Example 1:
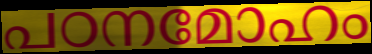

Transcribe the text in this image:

പഠനമോഹം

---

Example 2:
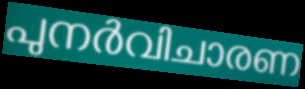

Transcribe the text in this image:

പുനർവിചാരണ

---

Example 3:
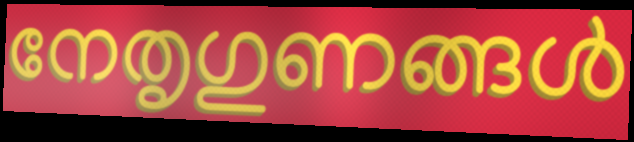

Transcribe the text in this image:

നേതൃഗുണങ്ങൾ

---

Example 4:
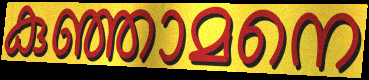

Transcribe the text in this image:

കുഞ്ഞാമനെ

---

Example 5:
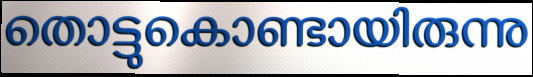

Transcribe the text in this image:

തൊട്ടുകൊണ്ടായിരുന്നു